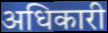
अधिकारी